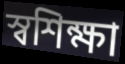
স্বশিক্ষা